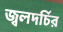
জ্বলদর্চির